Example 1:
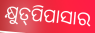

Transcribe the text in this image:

କ୍ଷୁତ୍‌ପିପାସାର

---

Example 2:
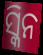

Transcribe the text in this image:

ସ୍କିନ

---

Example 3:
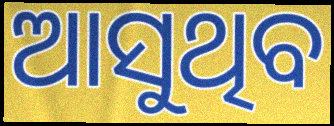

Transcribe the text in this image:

ଆସୁଥିବ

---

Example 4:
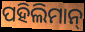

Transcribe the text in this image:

ପହିଲିମାନ୍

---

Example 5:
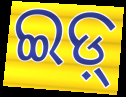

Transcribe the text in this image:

ଇଡ଼୍